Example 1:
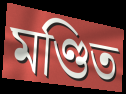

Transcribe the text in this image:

মণ্ডিত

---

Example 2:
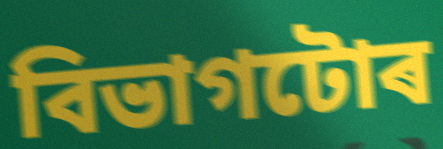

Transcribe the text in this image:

বিভাগটোৰ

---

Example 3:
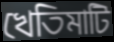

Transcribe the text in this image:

খেতিমাটি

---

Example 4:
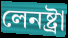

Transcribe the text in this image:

লেনষ্ট্ৰা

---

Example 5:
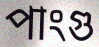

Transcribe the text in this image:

পাংগু